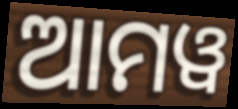
ଆମୱ